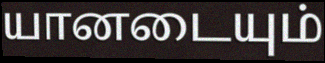
யானடையும்